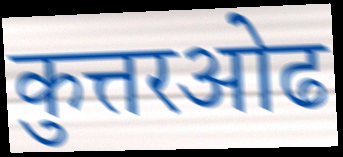
कुत्तरओढ